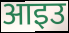
आइउ